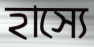
হাস্যে